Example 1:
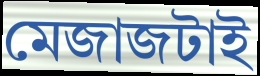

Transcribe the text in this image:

মেজাজটাই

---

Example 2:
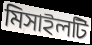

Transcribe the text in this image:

মিসাইলটি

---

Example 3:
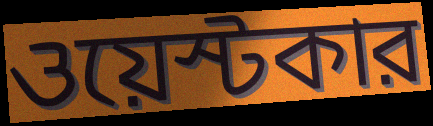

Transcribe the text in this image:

ওয়েস্টকার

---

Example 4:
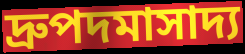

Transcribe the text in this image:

দ্রুপদমাসাদ্য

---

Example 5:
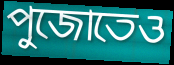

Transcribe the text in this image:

পুজোতেও